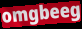
omgbeeg